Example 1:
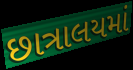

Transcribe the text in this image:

છાત્રાલયમાં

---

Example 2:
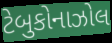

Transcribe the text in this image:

ટેબુકોનાઝોલ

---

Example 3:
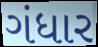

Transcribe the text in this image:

ગંધાર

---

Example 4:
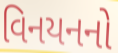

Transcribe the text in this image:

વિનયનનો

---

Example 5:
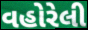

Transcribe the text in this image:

વહોરેલી